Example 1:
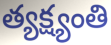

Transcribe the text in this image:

త్యక్ష్యంతి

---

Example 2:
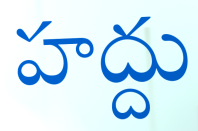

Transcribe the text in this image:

హద్దు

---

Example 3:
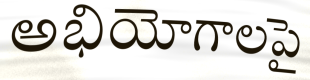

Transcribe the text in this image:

అభియోగాలపై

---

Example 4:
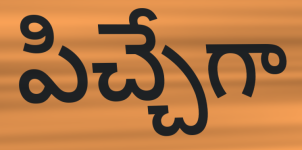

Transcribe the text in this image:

పిచ్చేగా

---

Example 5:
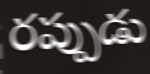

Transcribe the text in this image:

రప్పుడు